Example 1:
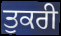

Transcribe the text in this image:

ਤੁਕਰੀ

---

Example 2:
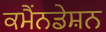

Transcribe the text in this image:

ਕਮੈਂਨਡੇਸ਼ਨ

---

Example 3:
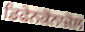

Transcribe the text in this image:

ਡਿਫੇਨਕੋਨਾਜ਼ੋਲ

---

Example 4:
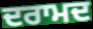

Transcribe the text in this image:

ਦਰਾਮਦ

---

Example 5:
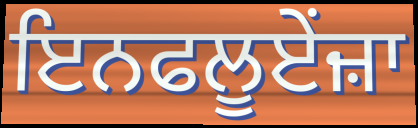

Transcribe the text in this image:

ਇਨਫਲੂਏਂਜ਼ਾ